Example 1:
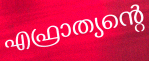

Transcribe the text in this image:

എഫ്രാത്യന്റെ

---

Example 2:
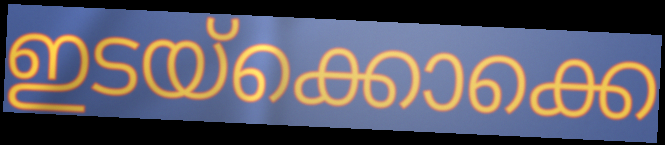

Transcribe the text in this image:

ഇടയ്ക്കൊക്കെ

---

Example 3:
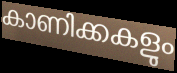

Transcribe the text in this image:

കാണിക്കകളും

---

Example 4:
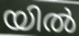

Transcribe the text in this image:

യിൽ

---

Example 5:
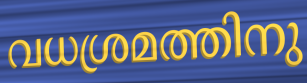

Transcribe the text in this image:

വധശ്രമത്തിനു